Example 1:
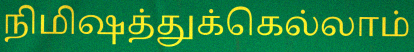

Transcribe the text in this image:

நிமிஷத்துக்கெல்லாம்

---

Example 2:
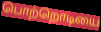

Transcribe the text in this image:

பொற்றொடியை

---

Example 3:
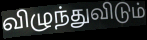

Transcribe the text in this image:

விழுந்துவிடும்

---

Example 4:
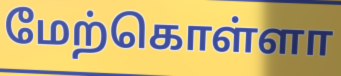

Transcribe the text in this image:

மேற்கொள்ளா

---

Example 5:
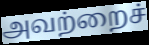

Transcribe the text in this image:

அவற்றைச்